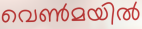
വെൺമയിൽ